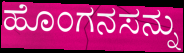
ಹೊಂಗನಸನ್ನು